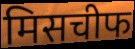
मिसचीफ